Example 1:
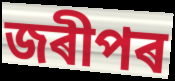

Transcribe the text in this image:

জৰীপৰ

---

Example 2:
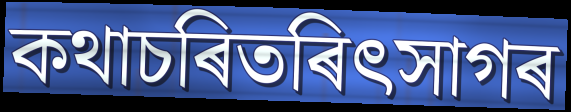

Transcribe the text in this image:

কথাচৰিতৰিৎসাগৰ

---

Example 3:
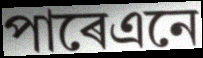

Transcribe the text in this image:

পাৰেএনে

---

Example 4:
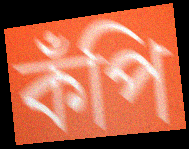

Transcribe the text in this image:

কঁপি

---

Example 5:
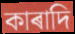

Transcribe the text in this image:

কাৰাদি